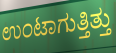
ಉಂಟಾಗುತ್ತಿತ್ತು